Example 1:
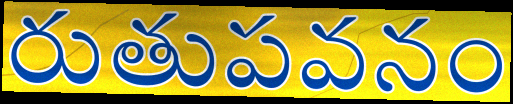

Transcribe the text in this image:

రుతుపవనం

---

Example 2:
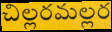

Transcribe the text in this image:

చిల్లరమల్లర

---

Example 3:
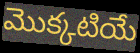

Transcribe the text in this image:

మొక్కటియే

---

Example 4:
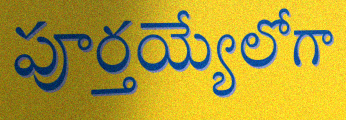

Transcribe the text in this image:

పూర్తయ్యేలోగా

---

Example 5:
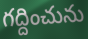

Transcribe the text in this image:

గద్దించును